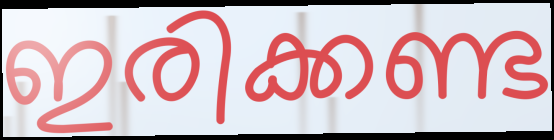
ഇരിക്കണ്ട